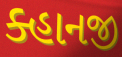
ક્હાનજી